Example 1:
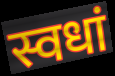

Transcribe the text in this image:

स्वधां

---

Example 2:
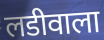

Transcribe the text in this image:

लडीवाला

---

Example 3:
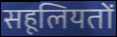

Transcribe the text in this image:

सहूलियतों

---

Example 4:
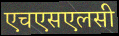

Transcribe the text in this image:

एचएसएलसी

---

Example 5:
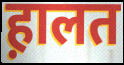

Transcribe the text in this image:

ह़ालत